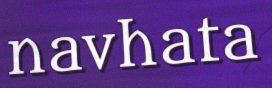
navhata